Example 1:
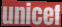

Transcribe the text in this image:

unicef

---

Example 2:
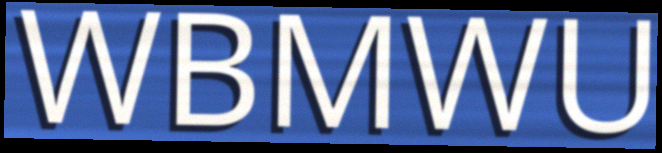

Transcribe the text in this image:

WBMWU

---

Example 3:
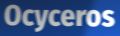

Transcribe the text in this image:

Ocyceros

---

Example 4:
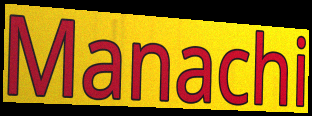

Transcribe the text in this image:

Manachi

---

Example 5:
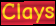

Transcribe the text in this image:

Clays